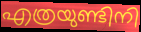
എത്രയുണ്ടിനി